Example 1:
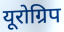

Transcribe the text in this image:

यूरोग्रिप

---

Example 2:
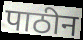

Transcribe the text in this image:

पाठीन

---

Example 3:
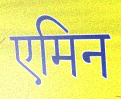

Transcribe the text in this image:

एमिन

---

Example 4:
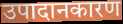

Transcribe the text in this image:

उपादानकारण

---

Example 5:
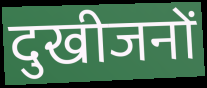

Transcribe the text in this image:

दुखीजनों